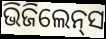
ଭିଜିଲେନ୍‌ସ